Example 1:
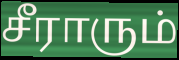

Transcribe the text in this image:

சீராரும்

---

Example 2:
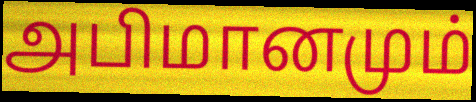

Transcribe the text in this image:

அபிமானமும்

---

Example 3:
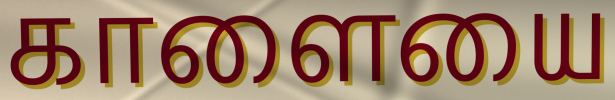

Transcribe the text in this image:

காளையை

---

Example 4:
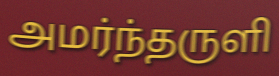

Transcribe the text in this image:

அமர்ந்தருளி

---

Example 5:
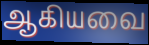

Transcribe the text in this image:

ஆகியவை